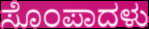
ಸೊಂಪಾದಳು